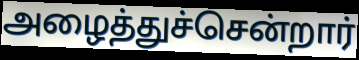
அழைத்துச்சென்றார்